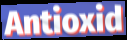
Antioxid